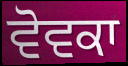
ਵੋਵਕਾ